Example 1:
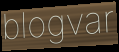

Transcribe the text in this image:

blogvar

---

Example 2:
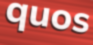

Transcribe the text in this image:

quos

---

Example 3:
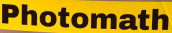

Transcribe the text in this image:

Photomath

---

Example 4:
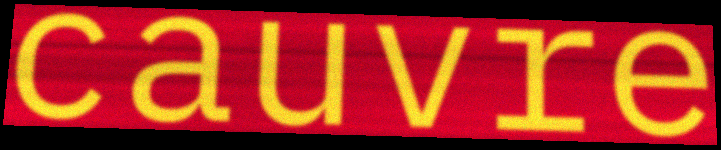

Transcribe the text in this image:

cauvre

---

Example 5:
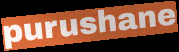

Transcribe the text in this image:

purushane